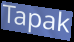
Tapak